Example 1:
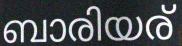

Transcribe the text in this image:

ബാരിയര്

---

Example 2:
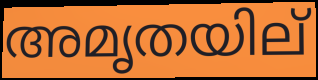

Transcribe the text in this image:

അമൃതയില്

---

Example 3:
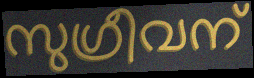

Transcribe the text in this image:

സുഗ്രീവന്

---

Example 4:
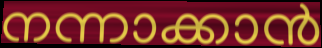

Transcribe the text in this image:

നന്നാക്കാൻ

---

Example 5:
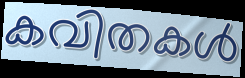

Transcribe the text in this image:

കവിതകൾ